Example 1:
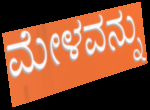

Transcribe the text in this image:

ಮೇಳವನ್ನು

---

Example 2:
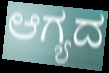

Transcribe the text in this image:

ಆಗ್ಯದ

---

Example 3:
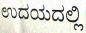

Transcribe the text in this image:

ಉದಯದಲ್ಲಿ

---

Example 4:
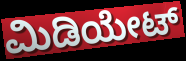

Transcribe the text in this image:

ಮಿಡಿಯೇಟ್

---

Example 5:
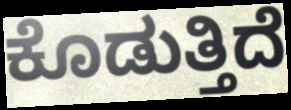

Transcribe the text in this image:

ಕೊಡುತ್ತಿದೆ